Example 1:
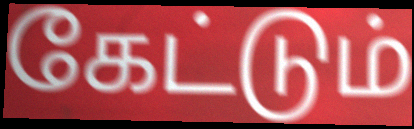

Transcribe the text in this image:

கேட்டும்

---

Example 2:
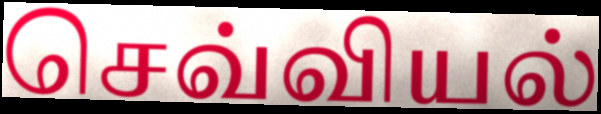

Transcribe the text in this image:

செவ்வியல்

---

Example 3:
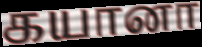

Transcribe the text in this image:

கயானா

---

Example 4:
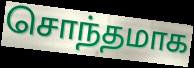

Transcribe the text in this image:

சொந்தமாக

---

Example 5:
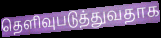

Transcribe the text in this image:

தெளிவுபடுத்துவதாக